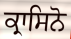
ਕ੍ਰਾਸਿਨੋ